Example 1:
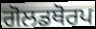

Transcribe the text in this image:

ਗੋਲਡਥੋਰਪ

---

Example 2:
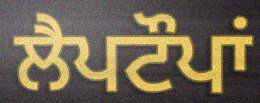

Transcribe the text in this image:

ਲੈਪਟੌਪਾਂ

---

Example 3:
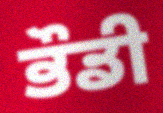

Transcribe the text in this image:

ਭੌਡੀ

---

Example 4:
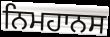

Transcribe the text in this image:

ਨਿਮਹਾਨਸ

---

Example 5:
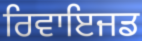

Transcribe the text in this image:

ਰਿਵਾਇਜਡ